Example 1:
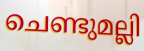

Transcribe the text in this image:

ചെണ്ടുമല്ലി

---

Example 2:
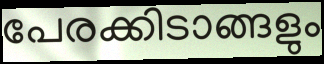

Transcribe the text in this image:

പേരക്കിടാങ്ങളും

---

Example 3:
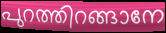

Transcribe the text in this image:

പുറത്തിറങ്ങാനേ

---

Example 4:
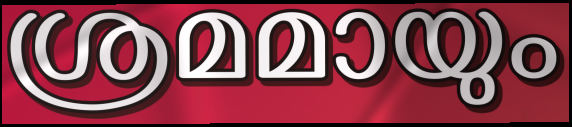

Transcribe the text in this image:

ശ്രമമായും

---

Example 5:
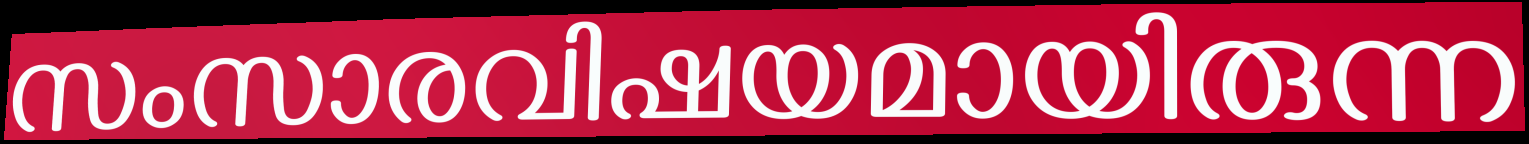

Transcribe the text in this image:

സംസാരവിഷയമായിരുന്ന